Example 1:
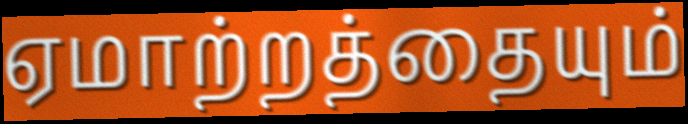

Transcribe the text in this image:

ஏமாற்றத்தையும்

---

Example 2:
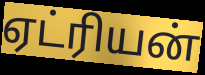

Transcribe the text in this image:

ஏட்ரியன்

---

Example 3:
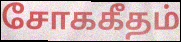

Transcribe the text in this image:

சோககீதம்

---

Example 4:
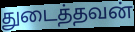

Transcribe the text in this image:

துடைத்தவன்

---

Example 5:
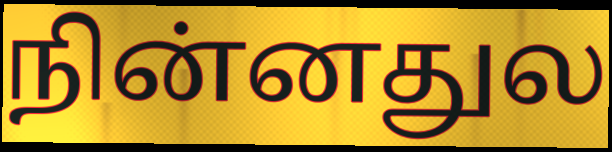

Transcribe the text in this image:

நின்னதுல